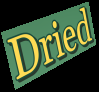
Dried